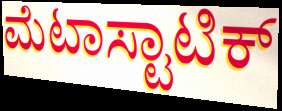
ಮೆಟಾಸ್ಟಾಟಿಕ್